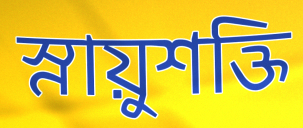
স্নায়ুশক্তি